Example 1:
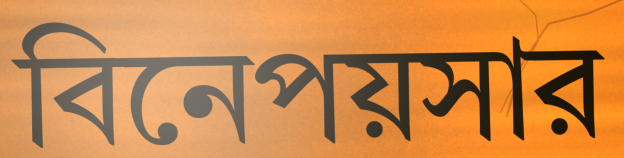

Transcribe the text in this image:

বিনেপয়সার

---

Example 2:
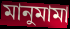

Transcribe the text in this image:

মানুমামা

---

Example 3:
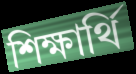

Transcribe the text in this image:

শিক্ষার্থি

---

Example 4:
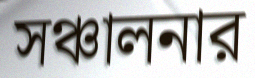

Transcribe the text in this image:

সঞ্চালনার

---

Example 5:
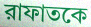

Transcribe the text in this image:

রাফাতকে